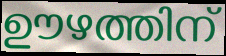
ഊഴത്തിന്